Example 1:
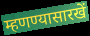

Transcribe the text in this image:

म्हणण्यासारखें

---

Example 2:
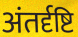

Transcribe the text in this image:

अंतर्दृष्टि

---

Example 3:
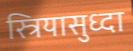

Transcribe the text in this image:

स्त्रियासुध्दा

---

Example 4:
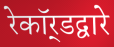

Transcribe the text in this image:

रेकॉर्डद्वारे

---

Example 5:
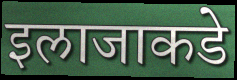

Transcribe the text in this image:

इलाजाकडे